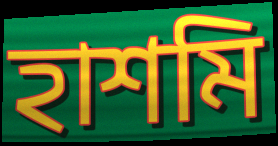
হাশমি